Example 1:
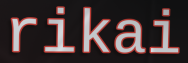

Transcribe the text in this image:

rikai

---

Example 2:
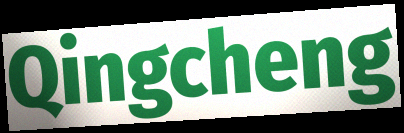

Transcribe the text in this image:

Qingcheng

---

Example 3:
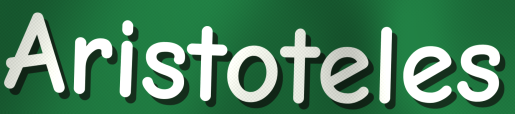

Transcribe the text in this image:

Aristoteles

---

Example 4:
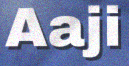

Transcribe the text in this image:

Aaji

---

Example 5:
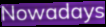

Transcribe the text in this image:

Nowadays